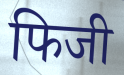
फिजी